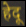
हेदू